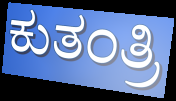
ಕುತಂತ್ರಿ